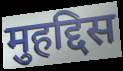
मुहद्दिस